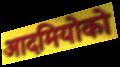
आदमियोको